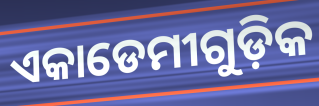
ଏକାଡେମୀଗୁଡ଼ିକ